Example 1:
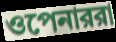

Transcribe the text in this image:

ওপেনাররা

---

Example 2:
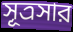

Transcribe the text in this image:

সূত্রসার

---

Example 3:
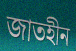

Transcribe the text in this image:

জাতহীন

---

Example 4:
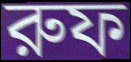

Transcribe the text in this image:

রুফ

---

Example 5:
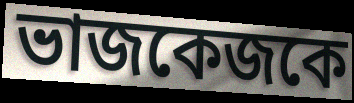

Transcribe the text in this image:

ভাজকেজকে